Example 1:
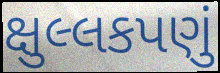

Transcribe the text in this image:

ક્ષુલ્લકપણું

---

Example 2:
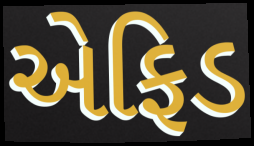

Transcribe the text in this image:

એફિડ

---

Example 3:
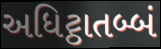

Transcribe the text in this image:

અધિટ્ઠાતબ્બં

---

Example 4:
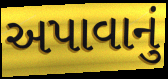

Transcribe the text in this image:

અપાવાનું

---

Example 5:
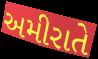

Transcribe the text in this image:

અમીરાતે